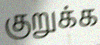
குறுக்க